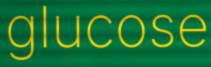
glucose